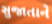
સુજાતાને